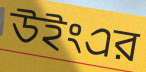
উইংএর